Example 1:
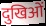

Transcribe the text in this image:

दुखिओं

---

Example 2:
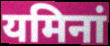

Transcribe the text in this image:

यमिनां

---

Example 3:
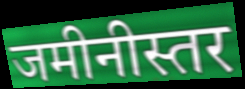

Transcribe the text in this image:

जमीनीस्तर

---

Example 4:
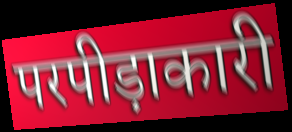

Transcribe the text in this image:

परपीड़ाकारी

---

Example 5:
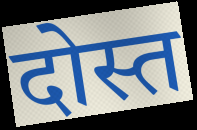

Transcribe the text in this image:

दोस्‍त